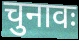
चुनावः